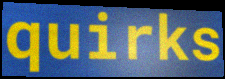
quirks